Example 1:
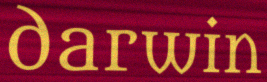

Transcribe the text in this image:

darwin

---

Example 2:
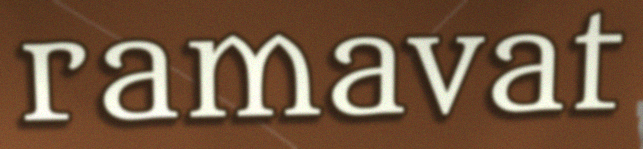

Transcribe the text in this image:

ramavat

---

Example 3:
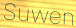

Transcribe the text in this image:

Suwen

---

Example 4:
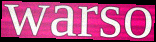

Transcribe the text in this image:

warso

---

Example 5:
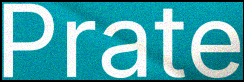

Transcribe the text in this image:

Prate